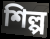
শিল্প